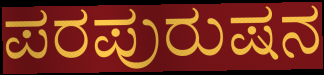
ಪರಪುರುಷನ